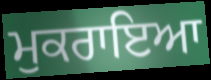
ਮੁਕਰਾਇਆ